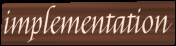
implementation